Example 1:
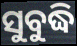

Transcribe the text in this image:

ସୁବୁଦ୍ଧି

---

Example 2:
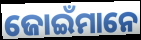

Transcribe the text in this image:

ଜୋଇଁମାନେ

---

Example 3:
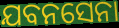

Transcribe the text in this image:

ଯବନସେନା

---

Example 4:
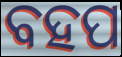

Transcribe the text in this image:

ବହପ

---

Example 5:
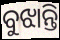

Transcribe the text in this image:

ବୁଝାନ୍ତି